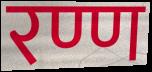
रण्ण